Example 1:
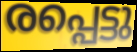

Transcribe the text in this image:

രപ്പെട്ടു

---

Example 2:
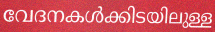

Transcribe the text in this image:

വേദനകൾക്കിടയിലുള്ള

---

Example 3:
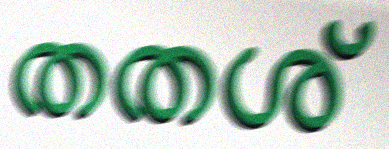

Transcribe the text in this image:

തതശ്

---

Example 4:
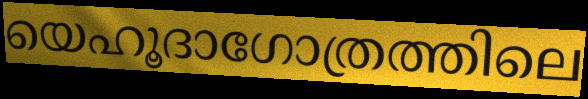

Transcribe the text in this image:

യെഹൂദാഗോത്രത്തിലെ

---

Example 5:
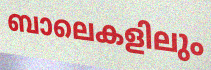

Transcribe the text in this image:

ബാലെകളിലും